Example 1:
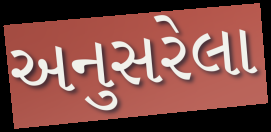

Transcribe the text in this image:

અનુસરેલા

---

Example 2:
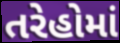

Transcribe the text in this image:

તરેહોમાં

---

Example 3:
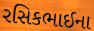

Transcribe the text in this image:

રસિકભાઈના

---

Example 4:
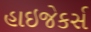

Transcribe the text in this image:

હાઇજેકર્સ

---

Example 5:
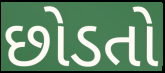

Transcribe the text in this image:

છોડતો